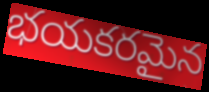
భయకరమైన